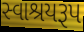
સ્વાશ્રયરૂપ